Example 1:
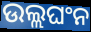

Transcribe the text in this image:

ଉଲ୍ଲଘଂନ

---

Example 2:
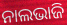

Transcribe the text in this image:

ନାଲଭାଜି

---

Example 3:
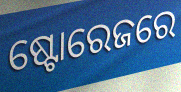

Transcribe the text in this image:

ଷ୍ଟୋରେଜରେ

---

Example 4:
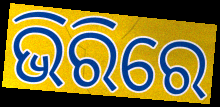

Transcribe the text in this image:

ଭିରିରେ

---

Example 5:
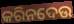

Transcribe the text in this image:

କରିନଦେଉ